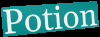
Potion